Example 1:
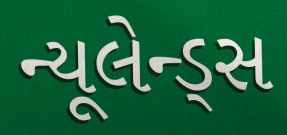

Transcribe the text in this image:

ન્યૂલેન્ડ્સ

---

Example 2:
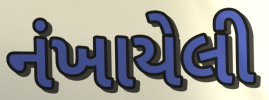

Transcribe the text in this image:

નંખાયેલી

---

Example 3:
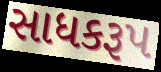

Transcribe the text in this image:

સાધકરૂપ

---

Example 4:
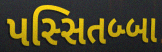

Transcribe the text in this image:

પસ્સિતબ્બા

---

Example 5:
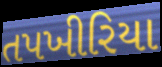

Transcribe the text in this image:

તપખીરિયા